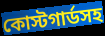
কোস্টগার্ডসহ